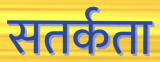
सतर्कता